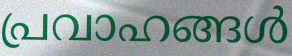
പ്രവാഹങ്ങൾ